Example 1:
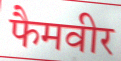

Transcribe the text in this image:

फैमवीर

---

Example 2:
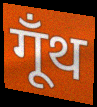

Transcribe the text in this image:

गूँथ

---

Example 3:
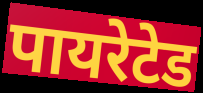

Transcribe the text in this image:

पायरेटेड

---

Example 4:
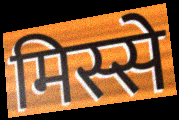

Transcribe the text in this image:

मिस्से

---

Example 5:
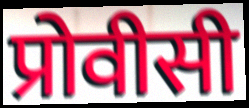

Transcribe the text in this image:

प्रोवीसी